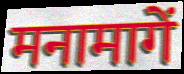
मनामागें